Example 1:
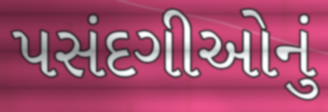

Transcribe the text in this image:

પસંદગીઓનું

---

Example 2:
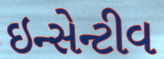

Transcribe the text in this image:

ઇન્સેન્ટીવ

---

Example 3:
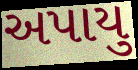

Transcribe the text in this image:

અપાયુ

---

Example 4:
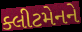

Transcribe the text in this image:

ક્લીટમેનને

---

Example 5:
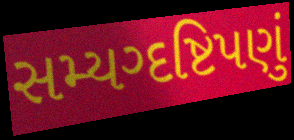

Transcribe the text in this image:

સમ્યગ્દષ્ટિપણું